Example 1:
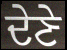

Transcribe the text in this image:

ਦੇਣੇ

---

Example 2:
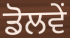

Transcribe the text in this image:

ਡੋਲਵੇਂ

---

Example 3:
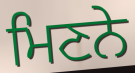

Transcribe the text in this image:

ਮਿਣਨੇ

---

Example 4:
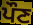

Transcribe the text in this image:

ਪੌਣ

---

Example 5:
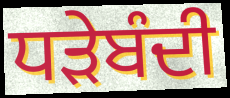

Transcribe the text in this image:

ਧੜੇਬੰਦੀ